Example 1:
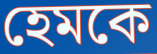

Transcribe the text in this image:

হেমকে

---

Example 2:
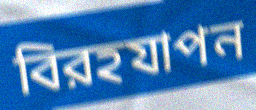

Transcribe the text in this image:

বিরহযাপন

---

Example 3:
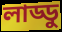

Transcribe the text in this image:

লাড্ডু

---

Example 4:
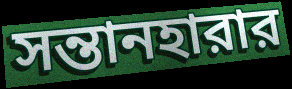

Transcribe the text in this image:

সন্তানহারার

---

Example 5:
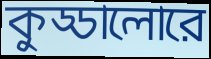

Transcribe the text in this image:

কুড্ডালোরে